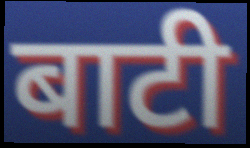
बाटी